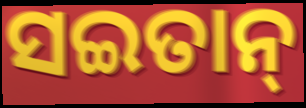
ସଇତାନ୍